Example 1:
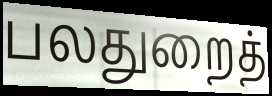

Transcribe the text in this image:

பலதுறைத்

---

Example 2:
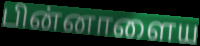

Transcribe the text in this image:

பின்னாளைய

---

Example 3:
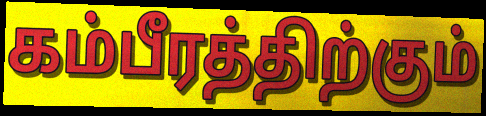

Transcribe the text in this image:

கம்பீரத்திற்கும்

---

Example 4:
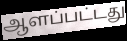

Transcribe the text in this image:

ஆளப்பட்டது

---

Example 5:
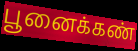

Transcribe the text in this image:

பூனைக்கண்